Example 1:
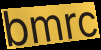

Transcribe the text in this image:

bmrc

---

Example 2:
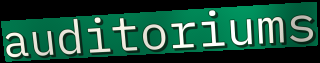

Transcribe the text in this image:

auditoriums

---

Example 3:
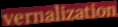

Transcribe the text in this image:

vernalization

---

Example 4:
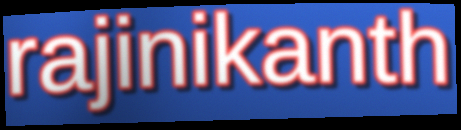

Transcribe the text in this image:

rajinikanth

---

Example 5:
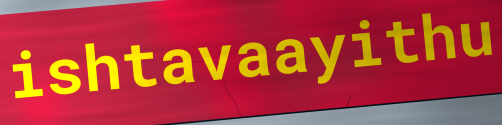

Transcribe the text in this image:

ishtavaayithu